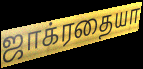
ஜாக்ரதையா